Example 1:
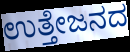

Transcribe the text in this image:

ಉತ್ತೇಜನದ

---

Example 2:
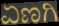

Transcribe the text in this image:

ಏಣಗಿ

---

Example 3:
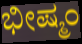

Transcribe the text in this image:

ಭೀಷ್ಮಂ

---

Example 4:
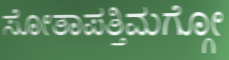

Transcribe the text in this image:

ಸೋತಾಪತ್ತಿಮಗ್ಗೋ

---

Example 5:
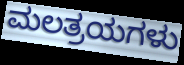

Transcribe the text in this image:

ಮಲತ್ರಯಗಳು